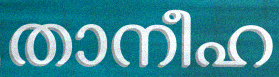
താനീഹ